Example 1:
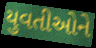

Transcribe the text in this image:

યુવતીઓને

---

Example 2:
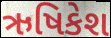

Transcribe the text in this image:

ઋષિકેશ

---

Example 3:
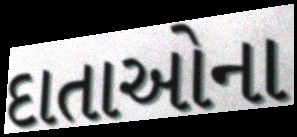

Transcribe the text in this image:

દાતાઓના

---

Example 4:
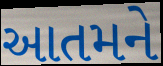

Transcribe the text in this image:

આતમને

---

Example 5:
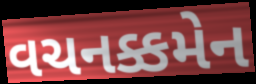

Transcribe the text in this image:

વચનક્કમેન